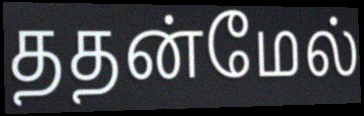
ததன்மேல்